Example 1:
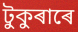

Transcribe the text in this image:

টুকুৰাৰে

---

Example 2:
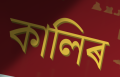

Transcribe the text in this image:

কালিৰ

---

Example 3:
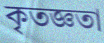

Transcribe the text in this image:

কৃতজ্ঞতা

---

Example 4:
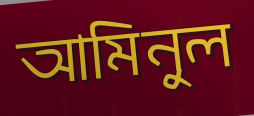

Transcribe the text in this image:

আমিনুল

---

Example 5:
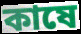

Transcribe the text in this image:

কাষে